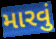
મારવું